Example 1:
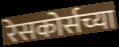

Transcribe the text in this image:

रेसकोर्सच्या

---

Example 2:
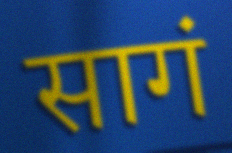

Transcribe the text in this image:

सागं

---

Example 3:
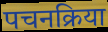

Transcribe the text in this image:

पचनक्रिया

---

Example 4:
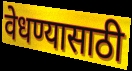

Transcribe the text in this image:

वेधण्यासाठी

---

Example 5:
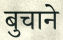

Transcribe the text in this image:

बुचाने